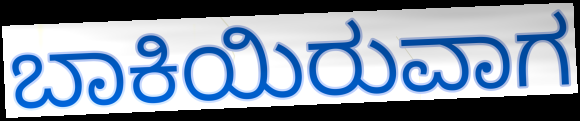
ಬಾಕಿಯಿರುವಾಗ